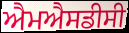
ਐਮਐਸਡੀਸੀ